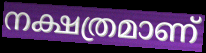
നക്ഷത്രമാണ്